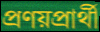
প্ৰণয়প্ৰাৰ্থী